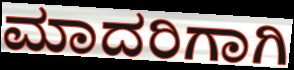
ಮಾದರಿಗಾಗಿ